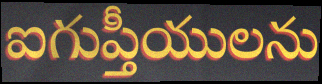
ఐగుప్తీయులను